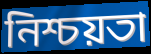
নিশ্চয়তা